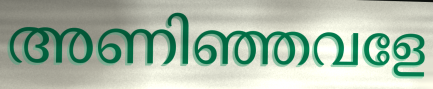
അണിഞ്ഞവളേ